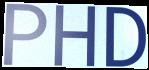
PHD